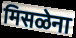
मिसळेना